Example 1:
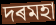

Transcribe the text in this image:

দৰমহা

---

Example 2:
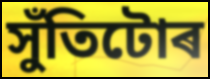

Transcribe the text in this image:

সুঁতিটোৰ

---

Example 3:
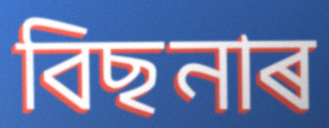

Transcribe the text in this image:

বিছনাৰ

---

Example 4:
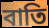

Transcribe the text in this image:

বাতি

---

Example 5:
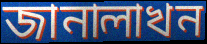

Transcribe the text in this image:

জানালাখন